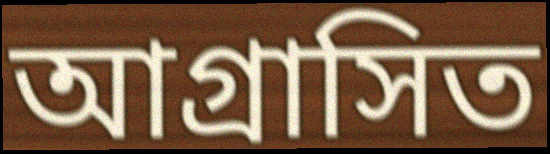
আগ্রাসিত